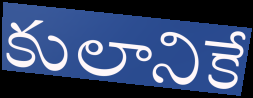
కులానికే